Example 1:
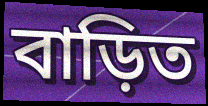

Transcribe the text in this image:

বাড়িত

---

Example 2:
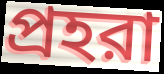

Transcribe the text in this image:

প্রহরা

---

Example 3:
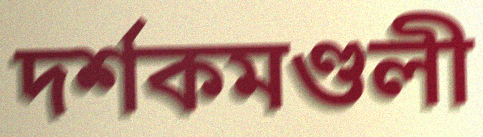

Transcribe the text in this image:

দর্শকমণ্ডলী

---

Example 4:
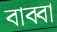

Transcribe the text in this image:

বাব্বা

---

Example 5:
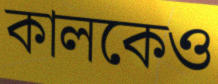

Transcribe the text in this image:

কালকেও